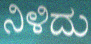
ನಿಳಿದು